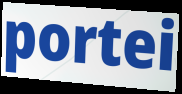
portei